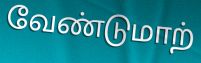
வேண்டுமாற்